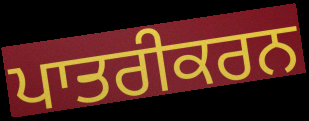
ਪਾਤਰੀਕਰਨ